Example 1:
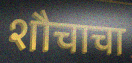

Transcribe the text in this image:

शौचाचा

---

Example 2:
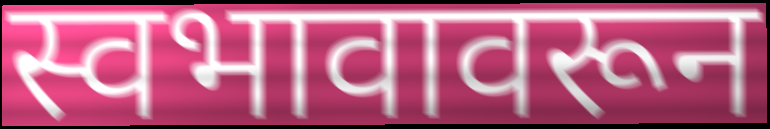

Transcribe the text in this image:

स्वभावावरून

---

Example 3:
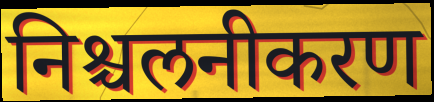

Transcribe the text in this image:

निश्चलनीकरण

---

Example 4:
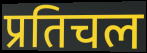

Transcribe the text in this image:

प्रतिचल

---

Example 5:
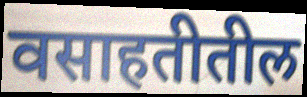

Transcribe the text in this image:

वसाहतीतील